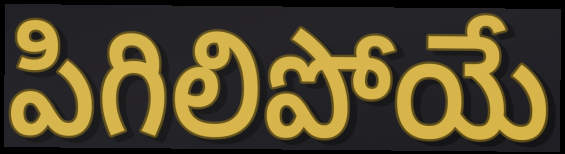
పిగిలిపోయే